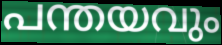
പന്തയവും